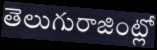
తెలుగురాజింట్లో